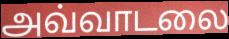
அவ்வாடலை